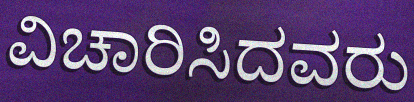
ವಿಚಾರಿಸಿದವರು